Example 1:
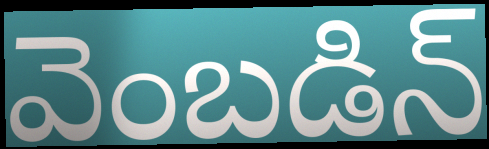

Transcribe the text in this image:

వెంబడిన్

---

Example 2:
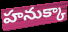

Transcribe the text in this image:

హనుక్కా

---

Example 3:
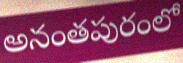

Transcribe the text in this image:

అనంతపురంలో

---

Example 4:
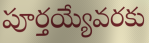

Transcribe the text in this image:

పూర్తయ్యేవరకు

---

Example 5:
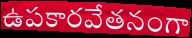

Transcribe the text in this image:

ఉపకారవేతనంగా